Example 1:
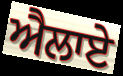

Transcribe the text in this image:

ਐਲਾਏ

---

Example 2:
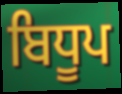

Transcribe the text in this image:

ਬਿਧੂਪ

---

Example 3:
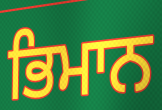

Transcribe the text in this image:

ਭਿਮਾਨ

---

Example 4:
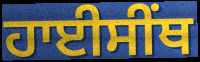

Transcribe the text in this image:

ਹਾਈਸੀੰਥ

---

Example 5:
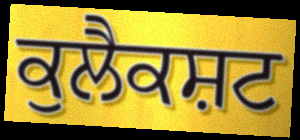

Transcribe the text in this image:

ਕੁਲੈਕਸ਼ਟ